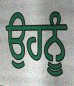
ਉਹਨੂੰ